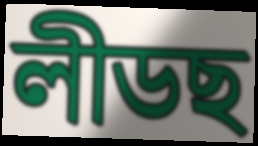
লীডছ